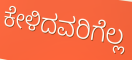
ಕೇಳಿದವರಿಗೆಲ್ಲ